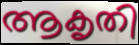
ആകൃതി